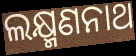
ଲକ୍ଷ୍ମଣନାଥ